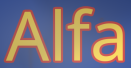
Alfa